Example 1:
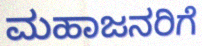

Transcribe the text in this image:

ಮಹಾಜನರಿಗೆ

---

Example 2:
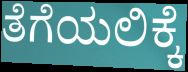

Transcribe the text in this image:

ತೆಗೆಯಲಿಕ್ಕೆ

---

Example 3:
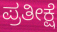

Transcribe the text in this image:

ಪ್ರತೀಕ್ಷೆ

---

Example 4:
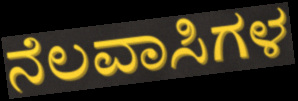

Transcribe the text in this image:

ನೆಲವಾಸಿಗಳ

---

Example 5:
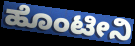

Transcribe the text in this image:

ಹೊಂಟೀನಿ